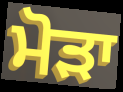
ਮੋੜਾ